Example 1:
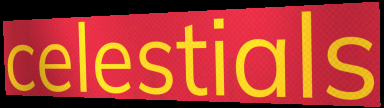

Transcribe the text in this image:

celestials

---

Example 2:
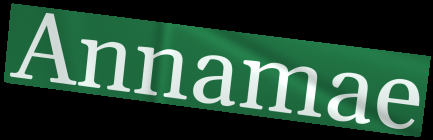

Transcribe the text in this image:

Annamae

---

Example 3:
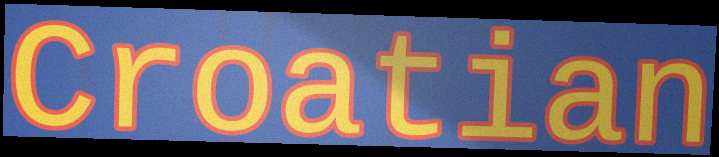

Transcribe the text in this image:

Croatian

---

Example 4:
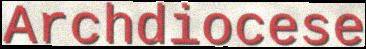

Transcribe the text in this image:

Archdiocese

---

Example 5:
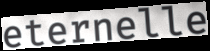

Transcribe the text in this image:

eternelle